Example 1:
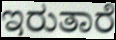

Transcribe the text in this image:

ಇರುತಾರೆ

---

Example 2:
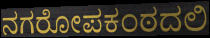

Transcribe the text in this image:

ನಗರೋಪಕಂಠದಲಿ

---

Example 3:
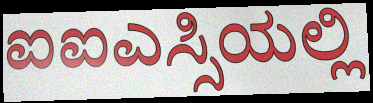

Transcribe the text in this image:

ಐಐಎಸ್ಸಿಯಲ್ಲಿ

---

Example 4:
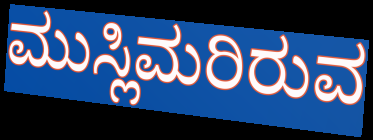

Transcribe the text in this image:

ಮುಸ್ಲಿಮರಿರುವ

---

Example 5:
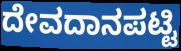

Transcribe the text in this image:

ದೇವದಾನಪಟ್ಟಿ